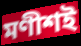
মণীশই